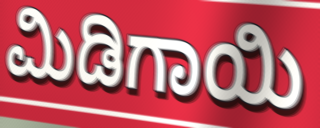
ಮಿಡಿಗಾಯಿ